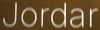
Jordar